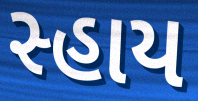
સ્હાય